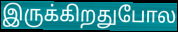
இருக்கிறதுபோல